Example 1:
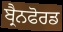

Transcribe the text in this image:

ਬ੍ਰੈਨਫੋਰਡ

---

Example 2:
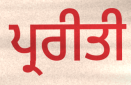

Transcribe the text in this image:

ਪ੍ਰਰੀਤੀ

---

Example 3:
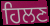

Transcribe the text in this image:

ਹਿਲਣ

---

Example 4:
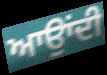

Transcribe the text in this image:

ਆਉਾਂਦੀ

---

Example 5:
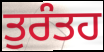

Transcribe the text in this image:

ਤੁਰੰਤਹ